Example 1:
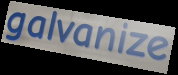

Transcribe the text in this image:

galvanize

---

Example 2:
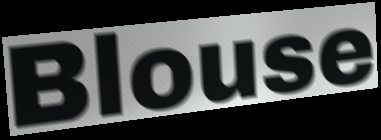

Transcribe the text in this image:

Blouse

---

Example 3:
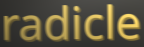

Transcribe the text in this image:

radicle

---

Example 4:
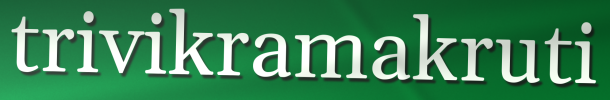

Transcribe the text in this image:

trivikramakruti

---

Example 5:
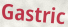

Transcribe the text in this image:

Gastric